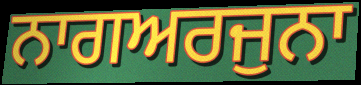
ਨਾਗਅਰਜੁਨਾ